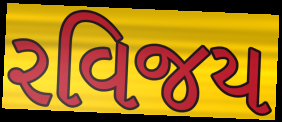
રવિજય